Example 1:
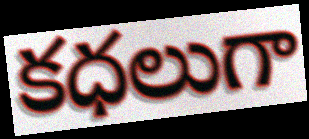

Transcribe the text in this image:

కధలుగా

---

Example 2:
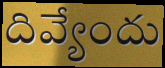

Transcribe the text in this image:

దివ్యేందు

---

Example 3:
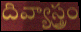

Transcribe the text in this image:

దివ్యాస్త్రం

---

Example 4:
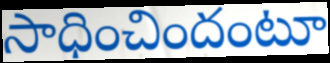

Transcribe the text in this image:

సాధించిందంటూ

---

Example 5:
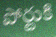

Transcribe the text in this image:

పోర్టుకి